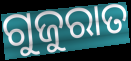
ଗୁଜୁରାତ